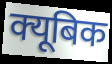
क्‍यूबिक